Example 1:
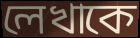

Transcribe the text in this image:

লেখাকে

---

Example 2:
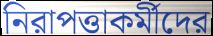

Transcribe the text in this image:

নিরাপত্তাকর্মীদের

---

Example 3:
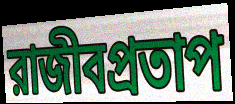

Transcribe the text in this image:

রাজীবপ্রতাপ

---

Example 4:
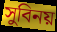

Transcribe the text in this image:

সুবিনয়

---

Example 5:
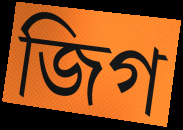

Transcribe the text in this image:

জিগ